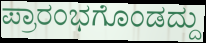
ಪ್ರಾರಂಭಗೊಂಡದ್ದು